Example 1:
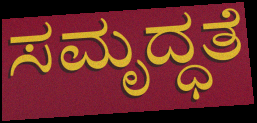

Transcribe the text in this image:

ಸಮೃದ್ಧತೆ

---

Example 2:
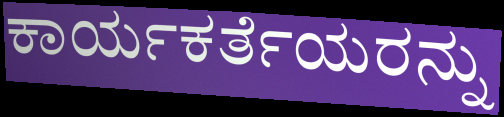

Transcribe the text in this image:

ಕಾರ್ಯಕರ್ತೆಯರನ್ನು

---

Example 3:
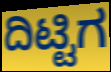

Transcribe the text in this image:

ದಿಟ್ಟಿಗ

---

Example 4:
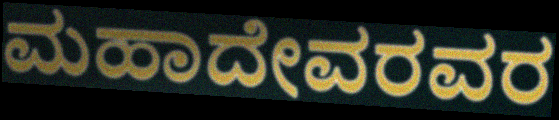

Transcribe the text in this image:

ಮಹಾದೇವರವರ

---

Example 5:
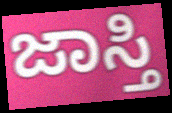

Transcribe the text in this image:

ಜಾಸ್ತಿ